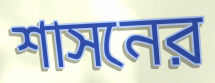
শাসনের